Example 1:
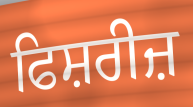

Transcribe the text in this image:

ਫਿਸ਼ਰੀਜ਼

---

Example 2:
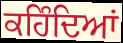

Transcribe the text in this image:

ਕਹਿੰਦਿਆਂ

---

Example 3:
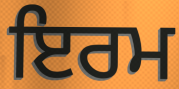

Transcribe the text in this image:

ਇਰਮ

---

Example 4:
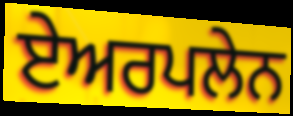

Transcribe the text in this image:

ਏਅਰਪਲੇਨ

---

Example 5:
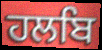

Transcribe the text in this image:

ਹਲਬਿ